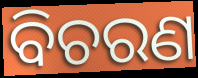
ବିଚରଣ